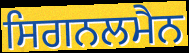
ਸਿਗਨਲਮੈਨ